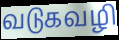
வடுகவழி